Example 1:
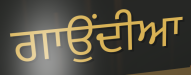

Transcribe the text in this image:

ਗਾਉਂਦੀਆ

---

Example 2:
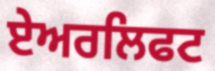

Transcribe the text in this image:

ਏਅਰਲਿਫਟ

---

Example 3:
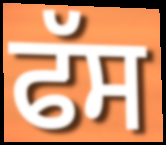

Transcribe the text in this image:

ਫੱਸ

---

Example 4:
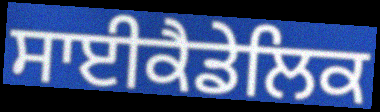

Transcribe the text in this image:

ਸਾਈਕੈਡੇਲਿਕ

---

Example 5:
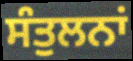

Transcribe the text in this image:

ਸੰਤੁਲਨਾਂ